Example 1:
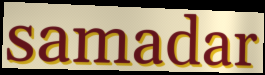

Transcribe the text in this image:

samadar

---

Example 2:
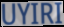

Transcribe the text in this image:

UYIRI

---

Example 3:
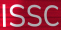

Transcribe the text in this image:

ISSC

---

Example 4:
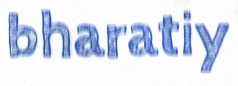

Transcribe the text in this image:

bharatiy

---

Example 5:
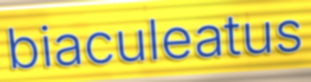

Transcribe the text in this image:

biaculeatus